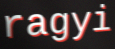
ragyi